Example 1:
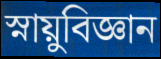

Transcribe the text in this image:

স্নায়ুবিজ্ঞান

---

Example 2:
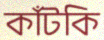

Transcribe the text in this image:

কাঁটকি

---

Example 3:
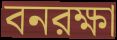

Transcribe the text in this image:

বনরক্ষা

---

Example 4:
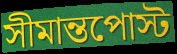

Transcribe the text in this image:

সীমান্তপোস্ট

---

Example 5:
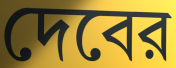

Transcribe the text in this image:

দেবের